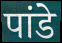
पांडे